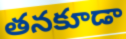
తనకూడా